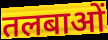
तलबाओं